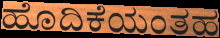
ಹೊದಿಕೆಯಂತಹ